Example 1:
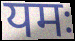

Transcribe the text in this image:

यमः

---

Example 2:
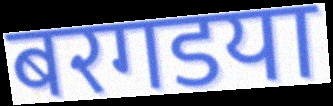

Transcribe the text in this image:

बरगडया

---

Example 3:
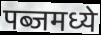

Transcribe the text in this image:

पब्जमध्ये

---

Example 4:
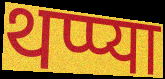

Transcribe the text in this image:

थप्प्या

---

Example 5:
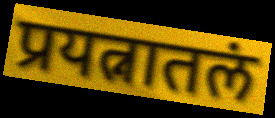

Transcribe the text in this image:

प्रयत्नातलं